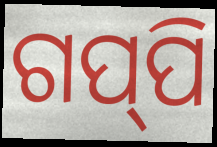
ଗପ୍‌ପି